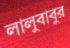
লালুবাবুর